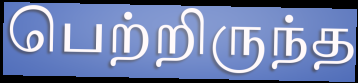
பெற்றிருந்த